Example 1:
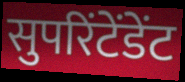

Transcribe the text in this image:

सुपरिंटेंडेंट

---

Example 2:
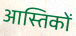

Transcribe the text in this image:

आस्तिकों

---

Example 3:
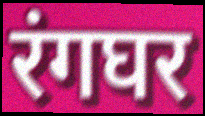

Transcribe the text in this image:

रंगघर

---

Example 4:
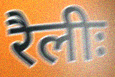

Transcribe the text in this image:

रैलीः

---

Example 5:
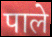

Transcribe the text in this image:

पाले